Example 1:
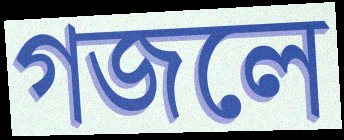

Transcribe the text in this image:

গজলে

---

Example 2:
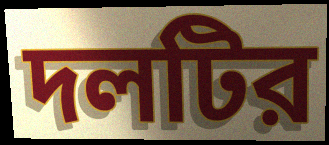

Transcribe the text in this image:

দলটির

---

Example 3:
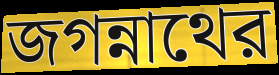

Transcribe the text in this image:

জগন্নাথের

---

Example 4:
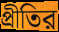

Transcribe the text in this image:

প্রীতির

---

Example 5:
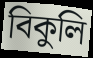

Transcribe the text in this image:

বিকুলি